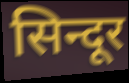
सिन्दूर